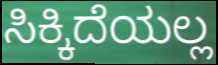
ಸಿಕ್ಕಿದೆಯಲ್ಲ